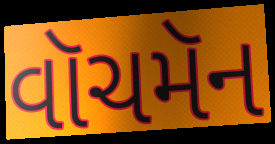
વૉચમૅન